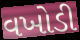
વખોડી